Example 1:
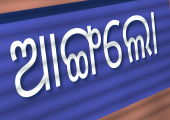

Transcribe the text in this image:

ଆଙ୍ଗଲୋ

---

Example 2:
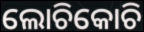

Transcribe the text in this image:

ଲୋଚିକୋଚି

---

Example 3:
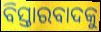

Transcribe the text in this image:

ବିସ୍ତାରବାଦକୁ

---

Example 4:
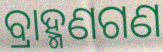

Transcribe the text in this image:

ବ୍ରାହ୍ମଣଗଣ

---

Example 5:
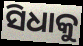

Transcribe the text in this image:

ସିଧାକୁ